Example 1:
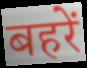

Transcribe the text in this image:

बहरें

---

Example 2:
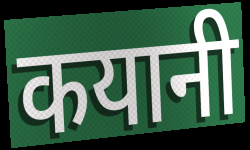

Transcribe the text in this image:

कयानी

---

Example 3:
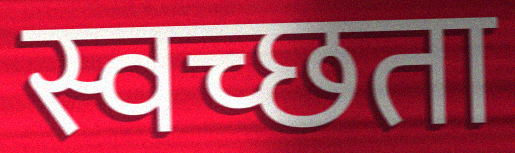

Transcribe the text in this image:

स्वच्छता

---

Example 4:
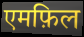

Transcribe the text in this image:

एमफ़िल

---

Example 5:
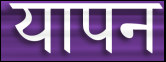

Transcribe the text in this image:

यापन